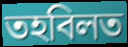
তহবিলত